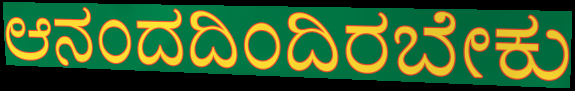
ಆನಂದದಿಂದಿರಬೇಕು